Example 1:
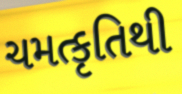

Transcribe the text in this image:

ચમત્કૃતિથી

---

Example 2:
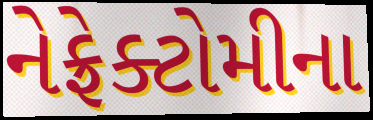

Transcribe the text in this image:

નેફ્રેક્ટોમીના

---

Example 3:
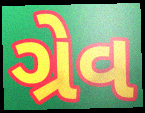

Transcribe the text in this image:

ગ્રેવ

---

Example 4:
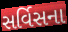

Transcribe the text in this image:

સર્વિસના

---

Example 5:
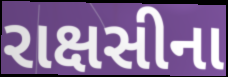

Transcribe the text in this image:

રાક્ષસીના